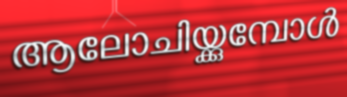
ആലോചിയ്ക്കുമ്പോൾ